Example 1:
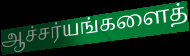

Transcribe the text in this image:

ஆச்சர்யங்களைத்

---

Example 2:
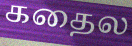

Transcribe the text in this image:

கதைல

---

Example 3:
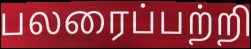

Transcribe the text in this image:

பலரைப்பற்றி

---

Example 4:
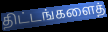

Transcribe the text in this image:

திட்டங்களைத்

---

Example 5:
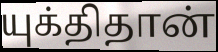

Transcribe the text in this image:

யுக்திதான்